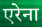
एरेना